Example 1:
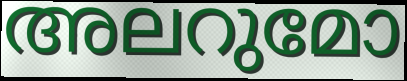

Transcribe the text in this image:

അലറുമോ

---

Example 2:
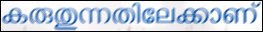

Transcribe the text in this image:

കരുതുന്നതിലേക്കാണ്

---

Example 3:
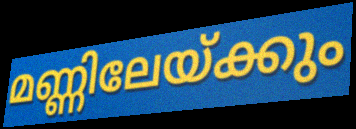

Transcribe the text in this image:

മണ്ണിലേയ്ക്കും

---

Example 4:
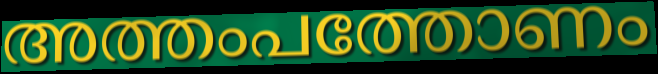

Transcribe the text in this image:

അത്തംപത്തോണം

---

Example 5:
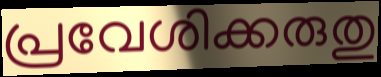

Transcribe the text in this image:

പ്രവേശിക്കരുതു